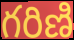
గరిణి